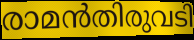
രാമൻതിരുവടി